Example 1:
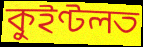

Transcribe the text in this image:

কুইণ্টলত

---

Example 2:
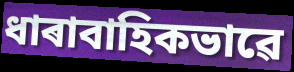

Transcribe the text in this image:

ধাৰাবাহিকভাৱে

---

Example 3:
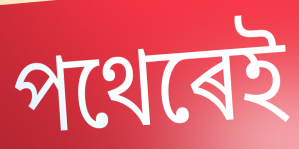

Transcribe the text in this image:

পথেৰেই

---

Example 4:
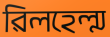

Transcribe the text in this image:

ৱিলহেল্ম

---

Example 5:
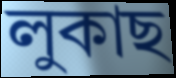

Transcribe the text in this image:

লুকাছ